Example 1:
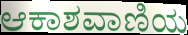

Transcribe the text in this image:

ಆಕಾಶವಾಣಿಯ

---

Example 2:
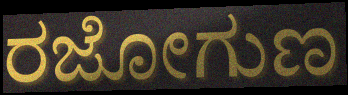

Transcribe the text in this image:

ರಜೋಗುಣ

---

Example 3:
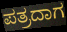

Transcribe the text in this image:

ಪತ್ರದಾಗ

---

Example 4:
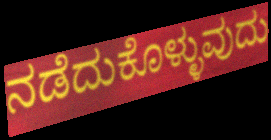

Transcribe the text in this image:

ನಡೆದುಕೊಳ್ಳುವುದು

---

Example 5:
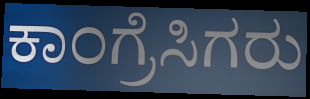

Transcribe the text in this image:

ಕಾಂಗ್ರೆಸಿಗರು